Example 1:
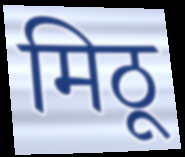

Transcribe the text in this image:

मिठू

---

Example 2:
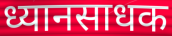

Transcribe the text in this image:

ध्यानसाधक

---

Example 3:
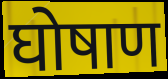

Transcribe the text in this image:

घोषाण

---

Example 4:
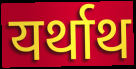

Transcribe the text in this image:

यर्थाथ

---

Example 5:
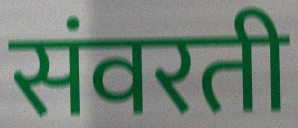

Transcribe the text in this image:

संवरती